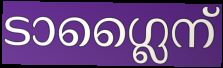
ടാഗ്ലൈന്